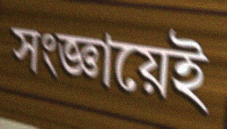
সংজ্ঞায়েই